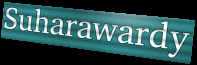
Suharawardy